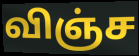
விஞ்ச